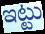
ఇట్టు